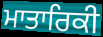
ਮਾਤਾਰਿਕੀ